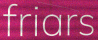
friars